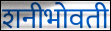
शनीभोवती